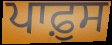
ਪਾਫ਼ੁਸ